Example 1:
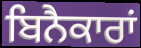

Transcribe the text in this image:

ਬਿਨੈਕਾਰਾਂ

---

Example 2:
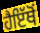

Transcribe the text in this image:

ਹੈਇੱਥੋਂ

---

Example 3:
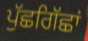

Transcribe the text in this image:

ਪੁੱਛਗਿੱਛਾਂ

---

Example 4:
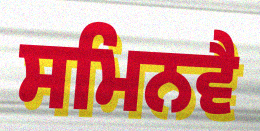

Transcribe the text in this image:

ਸਮਿਨਵੈ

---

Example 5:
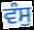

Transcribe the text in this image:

ਵੰਸੁ